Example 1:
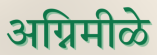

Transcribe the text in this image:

अग्निमीळे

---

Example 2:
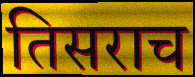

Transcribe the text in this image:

तिसराच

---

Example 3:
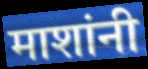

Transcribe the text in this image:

माशांनी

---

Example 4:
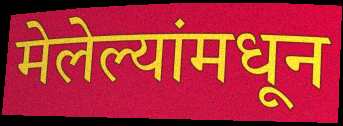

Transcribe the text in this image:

मेलेल्यांमधून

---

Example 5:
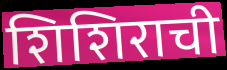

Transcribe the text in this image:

शिशिराची